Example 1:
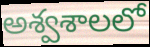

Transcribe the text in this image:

అశ్వశాలలో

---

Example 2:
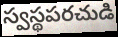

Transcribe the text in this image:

స్వస్థపరచుడి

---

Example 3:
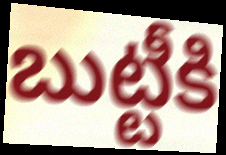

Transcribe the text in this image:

బుట్టీకి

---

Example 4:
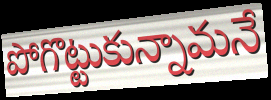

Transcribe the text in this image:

పోగొట్టుకున్నామనే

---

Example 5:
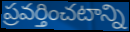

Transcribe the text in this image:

ప్రవర్తించటాన్ని